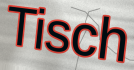
Tisch